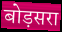
बोड़सरा